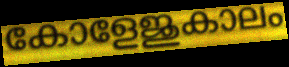
കോളേജുകാലം